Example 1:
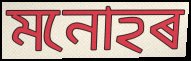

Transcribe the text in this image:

মনোহৰ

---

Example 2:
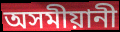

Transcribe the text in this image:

অসমীয়ানী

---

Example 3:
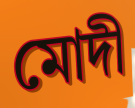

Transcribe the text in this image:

মোদী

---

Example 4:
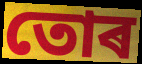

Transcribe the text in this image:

তোৰ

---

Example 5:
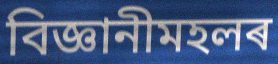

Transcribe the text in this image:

বিজ্ঞানীমহলৰ